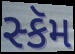
સ્કૅમ